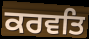
ਕਰਵਤਿ